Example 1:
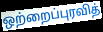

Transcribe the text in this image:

ஒற்றைப்புரவித்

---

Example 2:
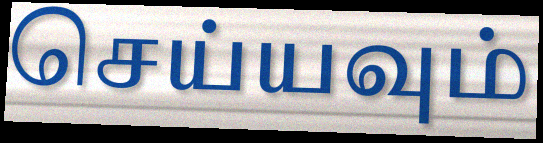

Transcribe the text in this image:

செய்யவும்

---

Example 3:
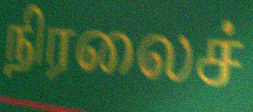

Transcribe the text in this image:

நிரலைச்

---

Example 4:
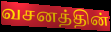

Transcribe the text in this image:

வசனத்தின்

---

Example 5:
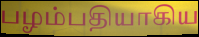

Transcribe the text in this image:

பழம்பதியாகிய